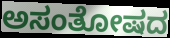
ಅಸಂತೋಷದ